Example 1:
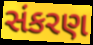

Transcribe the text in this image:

સંકરણ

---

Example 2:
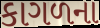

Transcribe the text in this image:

કાગળના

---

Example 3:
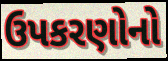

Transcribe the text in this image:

ઉપકરણોનો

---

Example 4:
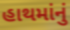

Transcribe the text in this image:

હાથમાંનું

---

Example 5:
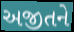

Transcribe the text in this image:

અજીતને